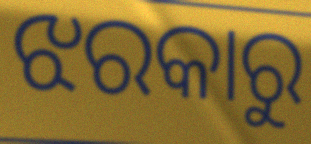
ଝରକାରୁ